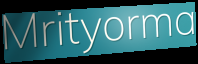
Mrityorma